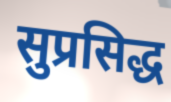
सुप्रसिद्ध